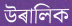
উৰালিক